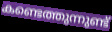
കണ്ടെത്തുന്നുണ്ട്